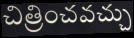
చిత్రించవచ్చు